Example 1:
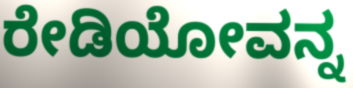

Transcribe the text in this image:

ರೇಡಿಯೋವನ್ನ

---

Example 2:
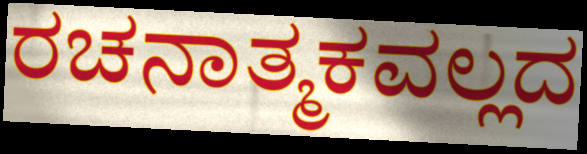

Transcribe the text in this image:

ರಚನಾತ್ಮಕವಲ್ಲದ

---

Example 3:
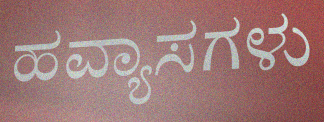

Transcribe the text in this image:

ಹವ್ಯಾಸಗಳು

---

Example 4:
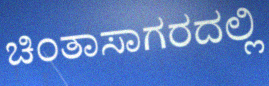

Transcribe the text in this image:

ಚಿಂತಾಸಾಗರದಲ್ಲಿ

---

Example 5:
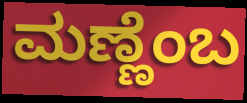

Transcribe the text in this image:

ಮಣ್ಣೆಂಬ